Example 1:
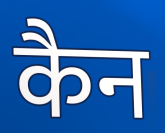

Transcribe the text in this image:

कैन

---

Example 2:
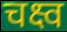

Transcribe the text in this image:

चक्ष्व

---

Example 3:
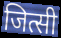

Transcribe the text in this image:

जित्सी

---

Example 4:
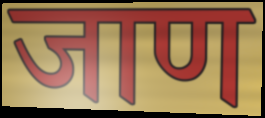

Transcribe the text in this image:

जाण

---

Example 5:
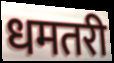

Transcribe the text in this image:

धमतरी